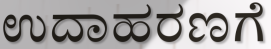
ಉದಾಹರಣಗೆ